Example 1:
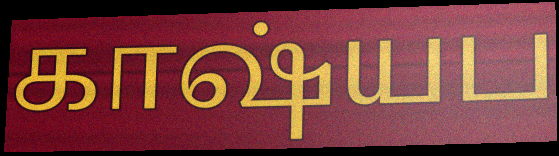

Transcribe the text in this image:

காஷ்யப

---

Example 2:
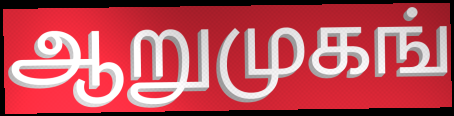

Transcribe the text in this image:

ஆறுமுகங்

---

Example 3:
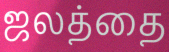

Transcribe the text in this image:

ஜலத்தை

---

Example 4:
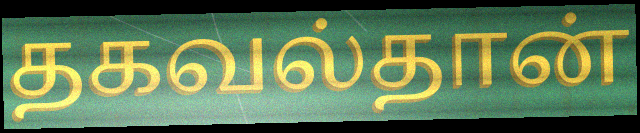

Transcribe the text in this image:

தகவல்தான்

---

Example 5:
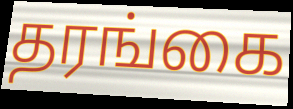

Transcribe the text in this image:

தரங்கை